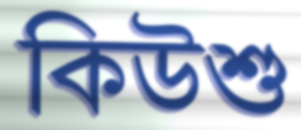
কিউশু